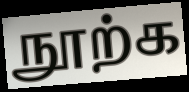
நூற்க